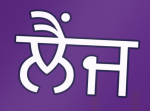
ਲੈਂਜ